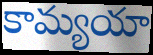
కామ్యయా